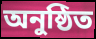
অনুষ্ঠিত